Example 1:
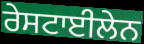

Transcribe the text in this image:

ਰੇਸਟਾਈਲੇਨ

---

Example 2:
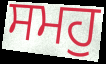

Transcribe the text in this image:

ਸਮਹੁ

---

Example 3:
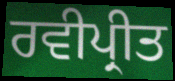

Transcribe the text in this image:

ਰਵੀਪ੍ਰੀਤ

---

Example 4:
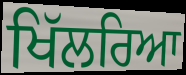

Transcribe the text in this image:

ਖਿੱਲਰਿਆ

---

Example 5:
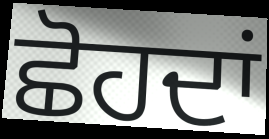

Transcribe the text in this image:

ਛੋਹਦਾਂ